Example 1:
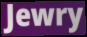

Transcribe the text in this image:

Jewry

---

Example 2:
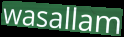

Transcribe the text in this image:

wasallam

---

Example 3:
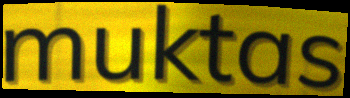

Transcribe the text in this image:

muktas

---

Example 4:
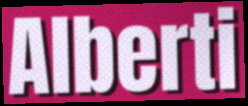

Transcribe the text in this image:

Alberti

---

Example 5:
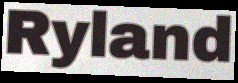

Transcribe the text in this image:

Ryland